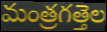
మంత్రగత్తెల